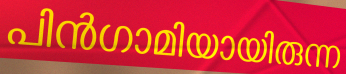
പിൻഗാമിയായിരുന്ന